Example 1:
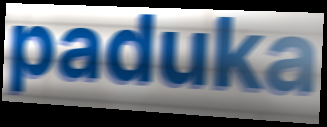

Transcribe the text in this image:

paduka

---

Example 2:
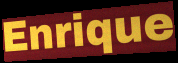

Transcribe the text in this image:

Enrique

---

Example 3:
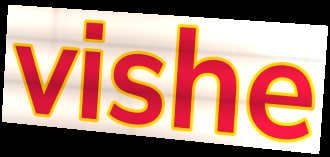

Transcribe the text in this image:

vishe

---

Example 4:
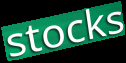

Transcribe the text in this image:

stocks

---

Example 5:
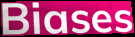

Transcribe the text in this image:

Biases